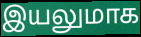
இயலுமாக